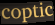
coptic